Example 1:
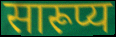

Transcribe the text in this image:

सारूप्य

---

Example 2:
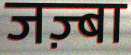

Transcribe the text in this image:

जज़्बा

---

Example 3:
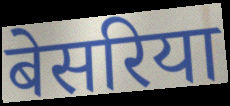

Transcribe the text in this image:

बेसरिया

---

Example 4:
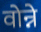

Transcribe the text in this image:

वोन्ने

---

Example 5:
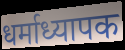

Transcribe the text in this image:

धर्माध्यापक